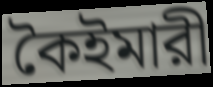
কৈইমারী